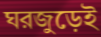
ঘরজুড়েই